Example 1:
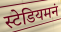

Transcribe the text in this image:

स्टेडियमनं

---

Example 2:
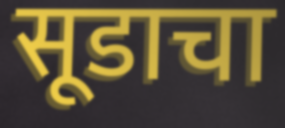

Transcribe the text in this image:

सूडाचा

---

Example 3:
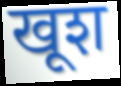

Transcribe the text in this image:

खूश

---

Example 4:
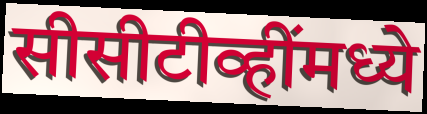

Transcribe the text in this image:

सीसीटीव्हींमध्ये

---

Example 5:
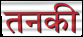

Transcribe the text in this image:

तनकी